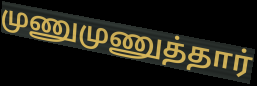
முணுமுணுத்தார்